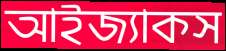
আইজ্যাকস